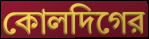
কোলদিগের